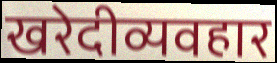
खरेदीव्यवहार